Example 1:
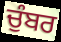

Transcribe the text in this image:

ਚੁੰਬਰ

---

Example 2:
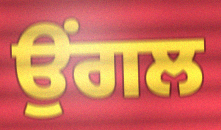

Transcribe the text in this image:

ਉੰਗਲ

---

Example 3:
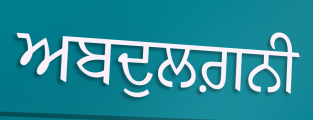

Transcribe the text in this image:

ਅਬਦੁਲਗ਼ਨੀ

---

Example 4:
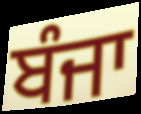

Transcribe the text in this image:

ਬੰਜਾ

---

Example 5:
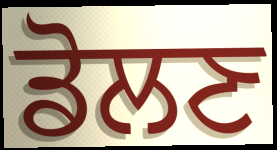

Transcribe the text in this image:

ਡੋਲਣ